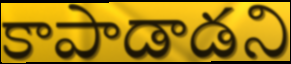
కాపాడాడని